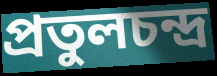
প্রতুলচন্দ্র